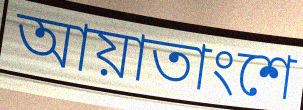
আয়াতাংশে